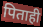
पिताही